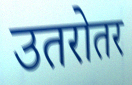
उतरोतर